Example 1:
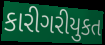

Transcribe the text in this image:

કારીગરીયુકત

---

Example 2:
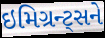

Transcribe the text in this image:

ઇમિગ્રન્ટ્સને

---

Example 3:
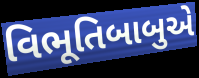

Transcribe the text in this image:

વિભૂતિબાબુએ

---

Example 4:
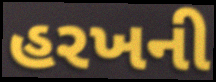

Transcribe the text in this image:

હરખની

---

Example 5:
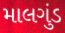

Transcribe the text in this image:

માલગુંડ